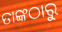
ତାଙ୍କଠାରୁ